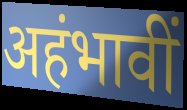
अहंभावीं